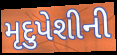
મૃદુપેશીની